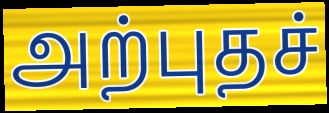
அற்புதச்